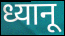
ध्यानू